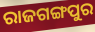
ରାଜଗଙ୍ଗପୁର